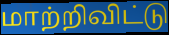
மாற்றிவிட்டு